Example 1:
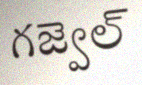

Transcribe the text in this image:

గజ్వెల్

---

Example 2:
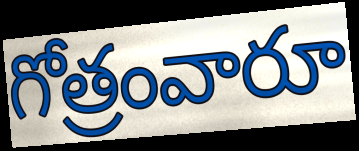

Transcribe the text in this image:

గోత్రంవారూ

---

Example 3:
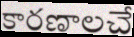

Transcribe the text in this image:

కారణాలచే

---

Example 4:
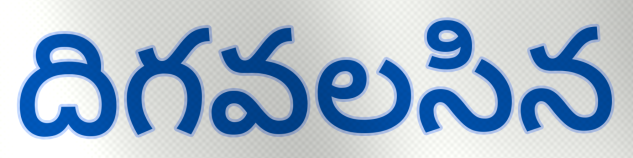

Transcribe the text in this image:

దిగవలసిన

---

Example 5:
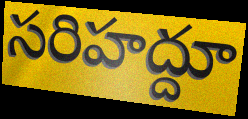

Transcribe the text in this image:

సరిహద్దూ